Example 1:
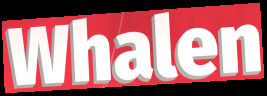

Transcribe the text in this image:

Whalen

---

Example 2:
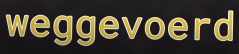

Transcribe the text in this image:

weggevoerd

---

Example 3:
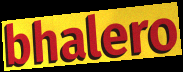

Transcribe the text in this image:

bhalero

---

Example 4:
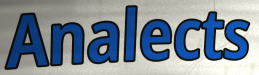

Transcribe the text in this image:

Analects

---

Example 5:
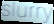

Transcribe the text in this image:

slurry